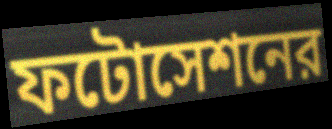
ফটোসেশনের